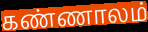
கண்ணாலம்